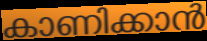
കാണിക്കാൻ